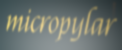
micropylar